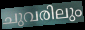
ചുവരിലും